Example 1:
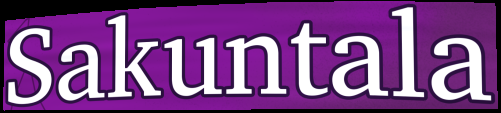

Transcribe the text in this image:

Sakuntala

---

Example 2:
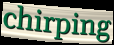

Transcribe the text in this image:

chirping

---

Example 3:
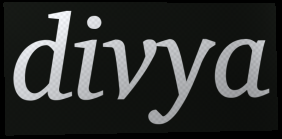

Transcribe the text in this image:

divya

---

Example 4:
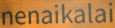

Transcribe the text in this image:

nenaikalai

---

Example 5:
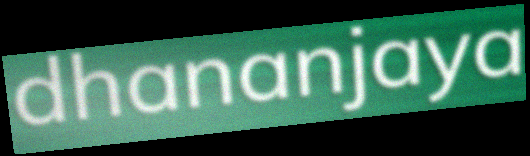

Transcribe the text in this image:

dhananjaya